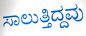
ಸಾಲುತ್ತಿದ್ದವು